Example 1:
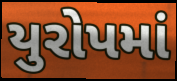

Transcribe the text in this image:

યુરોપમાં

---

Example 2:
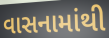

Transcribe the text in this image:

વાસનામાંથી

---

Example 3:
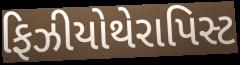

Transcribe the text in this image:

ફિઝીયોથેરાપિસ્ટ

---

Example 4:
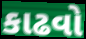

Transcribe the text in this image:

કાઢવો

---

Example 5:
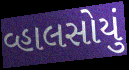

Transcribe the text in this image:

વ્હાલસોયું